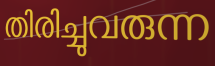
തിരിച്ചുവരുന്ന